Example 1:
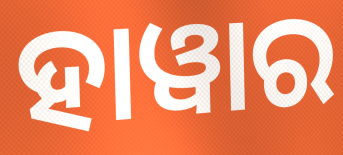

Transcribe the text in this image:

ହାୱାର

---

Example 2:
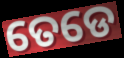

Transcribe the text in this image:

ତେଡେ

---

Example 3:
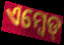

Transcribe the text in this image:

ଏମ୍ବେଡ୍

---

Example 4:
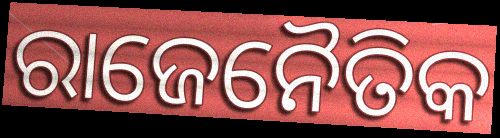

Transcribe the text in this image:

ରାଜେନୈତିକ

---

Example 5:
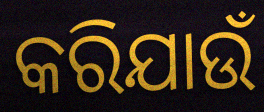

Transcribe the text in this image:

କରିଯାଉଁ